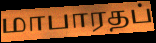
மாபாரதப்